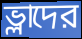
ভ্লাদের